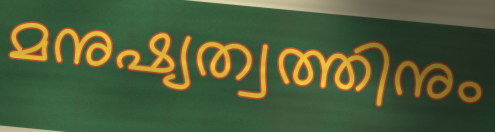
മനുഷ്യത്വത്തിനും